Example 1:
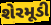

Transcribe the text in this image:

શેરમૂડી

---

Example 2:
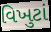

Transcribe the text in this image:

વિખુટાં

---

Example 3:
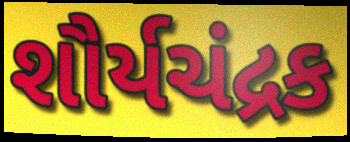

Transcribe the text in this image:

શૌર્યચંદ્રક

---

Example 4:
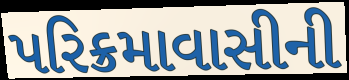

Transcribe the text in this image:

પરિક્રમાવાસીની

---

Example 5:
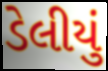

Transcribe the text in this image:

ડેલીયું